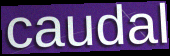
caudal